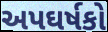
અપઘર્ષકો